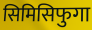
सिमिसिफुगा